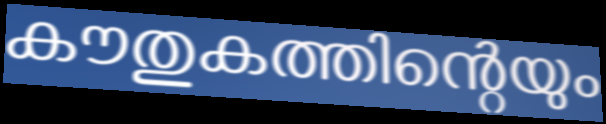
കൗതുകത്തിന്റെയും